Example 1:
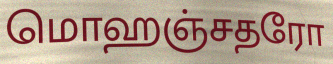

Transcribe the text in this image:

மொஹஞ்சதரோ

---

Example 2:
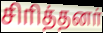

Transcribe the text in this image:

சிரித்தனர்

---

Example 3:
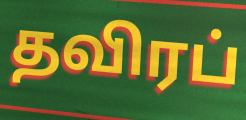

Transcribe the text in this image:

தவிரப்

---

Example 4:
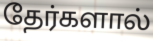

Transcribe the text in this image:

தேர்களால்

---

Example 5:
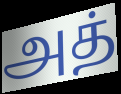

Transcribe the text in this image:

அத்